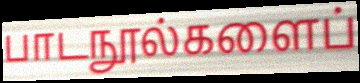
பாடநூல்களைப்